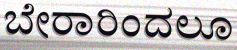
ಬೇರಾರಿಂದಲೂ